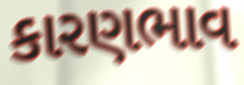
કારણભાવ